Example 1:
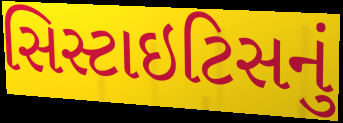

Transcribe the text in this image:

સિસ્ટાઇટિસનું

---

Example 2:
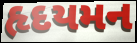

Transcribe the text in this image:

હૃદયમન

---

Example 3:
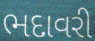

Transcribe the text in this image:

ભદાવરી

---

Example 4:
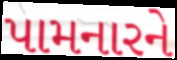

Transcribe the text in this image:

પામનારને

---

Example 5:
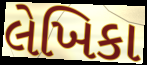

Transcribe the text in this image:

લેખિકા